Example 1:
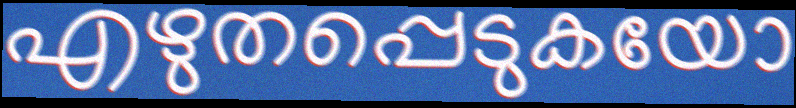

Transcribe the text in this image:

എഴുതപ്പെടുകയോ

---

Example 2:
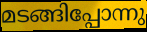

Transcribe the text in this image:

മടങ്ങിപ്പോന്നു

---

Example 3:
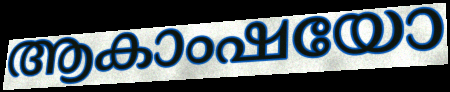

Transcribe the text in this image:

ആകാംഷയോ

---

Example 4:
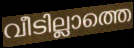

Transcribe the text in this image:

വീടില്ലാത്തെ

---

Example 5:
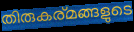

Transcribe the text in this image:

തിരുകര്മങ്ങളുടെ